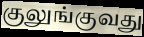
குலுங்குவது